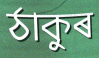
ঠাকুৰ